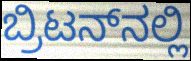
ಬ್ರಿಟನ್‌ನಲ್ಲಿ